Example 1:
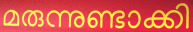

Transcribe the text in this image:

മരുന്നുണ്ടാക്കി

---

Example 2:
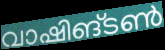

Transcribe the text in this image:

വാഷിങ്ടൺ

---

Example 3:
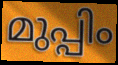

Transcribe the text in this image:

മുപ്പിം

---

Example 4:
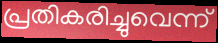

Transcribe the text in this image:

പ്രതികരിച്ചുവെന്ന്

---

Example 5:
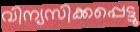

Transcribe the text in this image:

വിന്യസിക്കപ്പെട്ടു